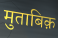
मुताबिक़